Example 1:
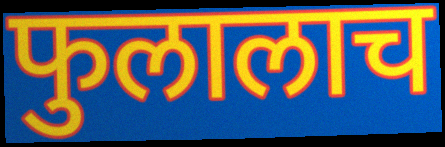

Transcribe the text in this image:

फुलालाच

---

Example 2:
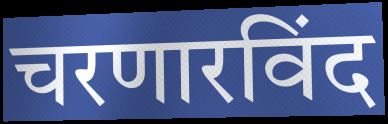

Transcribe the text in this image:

चरणारविंद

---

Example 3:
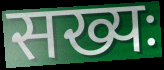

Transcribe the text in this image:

सख्यः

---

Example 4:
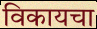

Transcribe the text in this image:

विकायचा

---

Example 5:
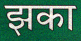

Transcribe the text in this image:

झका